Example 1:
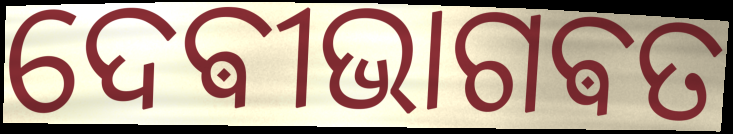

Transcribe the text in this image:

ଦେଵୀଭାଗଵତ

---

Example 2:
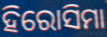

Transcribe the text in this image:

ହିରୋସିମା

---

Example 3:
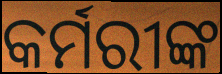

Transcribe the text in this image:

କର୍ମରୀଙ୍କ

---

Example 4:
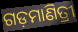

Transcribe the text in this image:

ଗଡ଼ମାଣିତ୍ରୀ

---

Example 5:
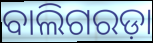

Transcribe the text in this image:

ବାଲିଗରଡ଼ା